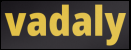
vadaly